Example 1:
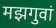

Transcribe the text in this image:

मझगुवां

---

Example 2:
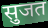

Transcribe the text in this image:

सुजत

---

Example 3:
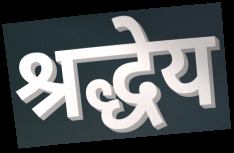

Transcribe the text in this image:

श्रद्धेय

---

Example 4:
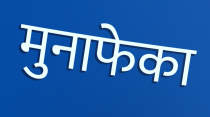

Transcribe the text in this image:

मुनाफेका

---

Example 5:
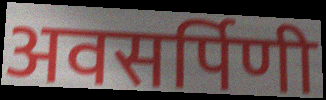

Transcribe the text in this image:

अवसर्पिणी